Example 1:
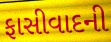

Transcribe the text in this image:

ફાસીવાદની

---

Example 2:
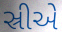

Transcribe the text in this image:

સ્રીએ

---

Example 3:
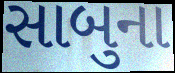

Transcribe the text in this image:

સાબુના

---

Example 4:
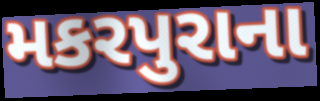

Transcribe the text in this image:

મકરપુરાના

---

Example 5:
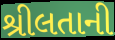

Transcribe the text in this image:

શ્રીલતાની